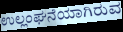
ಉಲ್ಲಂಘನೆಯಾಗಿರುವ